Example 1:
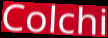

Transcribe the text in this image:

Colchi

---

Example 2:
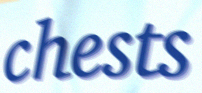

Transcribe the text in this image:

chests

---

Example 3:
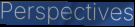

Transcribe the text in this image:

Perspectives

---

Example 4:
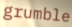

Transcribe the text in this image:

grumble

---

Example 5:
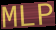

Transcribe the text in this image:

MLP